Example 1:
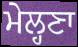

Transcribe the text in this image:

ਮੇਲ੍ਹਣਾ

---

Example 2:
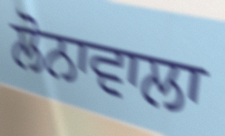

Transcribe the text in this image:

ਲੋਨਾਵਾਲਾ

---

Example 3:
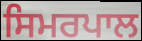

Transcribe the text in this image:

ਸਿਮਰਪਾਲ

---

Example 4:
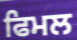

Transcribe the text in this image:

ਫਿਮਲ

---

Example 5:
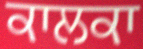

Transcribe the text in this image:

ਕਾਲਕਾ